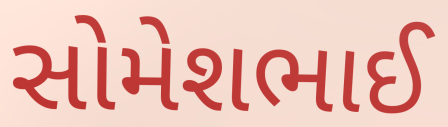
સોમેશભાઈ